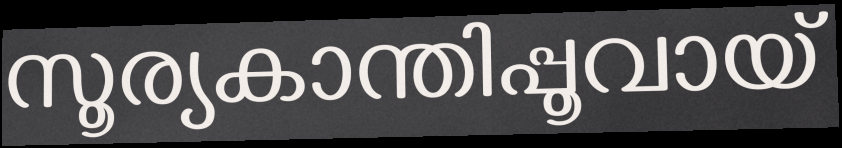
സൂര്യകാന്തിപ്പൂവായ്